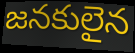
జనకులైన